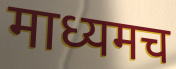
माध्यमच